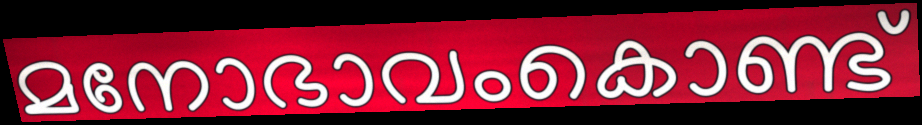
മനോഭാവംകൊണ്ട്